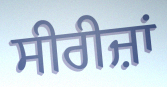
ਸੀਰੀਜ਼ਾਂ